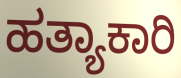
ಹತ್ಯಾಕಾರಿ